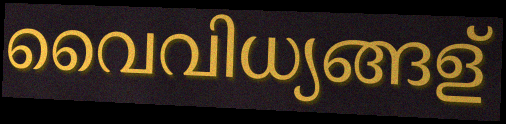
വൈവിധ്യങ്ങള്